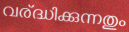
വര്ദ്ധിക്കുന്നതും